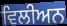
ਵਿਲੀਅਨ